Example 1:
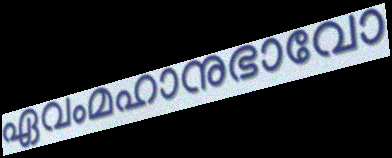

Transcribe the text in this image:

ഏവംമഹാനുഭാവോ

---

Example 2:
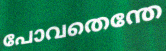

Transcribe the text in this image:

പോവതെന്തേ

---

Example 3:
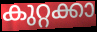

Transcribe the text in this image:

കുറ്റക്കാ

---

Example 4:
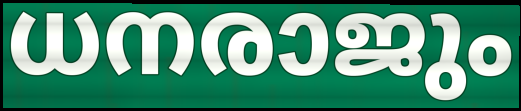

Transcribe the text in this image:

ധനരാജും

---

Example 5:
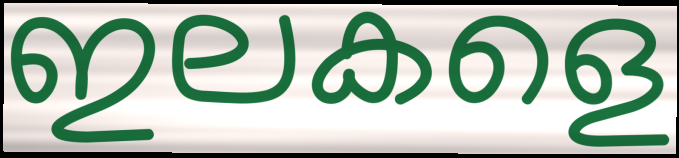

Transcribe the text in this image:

ഇലകളെ